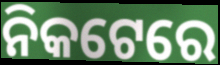
ନିକଟେରେ